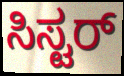
ಸಿಸ್ಟರ್